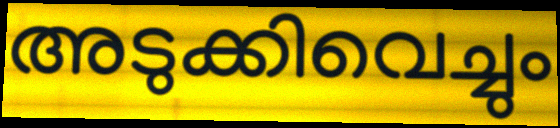
അടുക്കിവെച്ചും